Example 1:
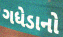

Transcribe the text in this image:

ગધેડાનો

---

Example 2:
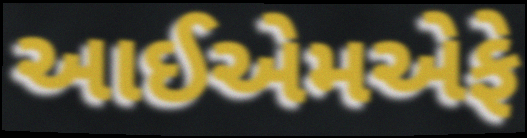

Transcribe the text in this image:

આઈએમએફે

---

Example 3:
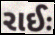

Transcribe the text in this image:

રાઈઃ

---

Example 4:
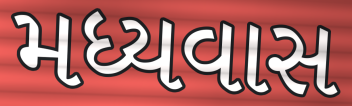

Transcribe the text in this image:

મધ્યવાસ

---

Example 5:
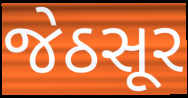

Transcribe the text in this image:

જેઠસૂર